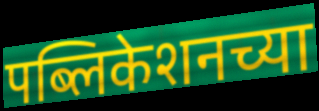
पब्लिकेशनच्या